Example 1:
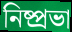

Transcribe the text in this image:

নিষ্প্রভা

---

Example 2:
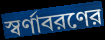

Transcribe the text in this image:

স্বর্ণাবরণের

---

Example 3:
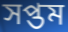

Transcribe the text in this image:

সপ্তম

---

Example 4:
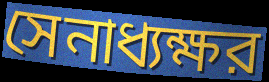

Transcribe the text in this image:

সেনাধ্যক্ষর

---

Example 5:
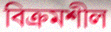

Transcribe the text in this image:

বিক্রমশীল